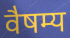
वैषम्य